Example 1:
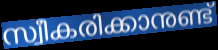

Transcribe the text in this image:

സ്വീകരിക്കാനുണ്ട്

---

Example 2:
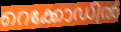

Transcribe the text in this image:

റെക്കോഡിൽ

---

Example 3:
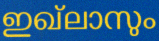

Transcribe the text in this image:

ഇഖ്‌ലാസും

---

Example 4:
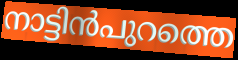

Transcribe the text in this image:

നാട്ടിൻപുറത്തെ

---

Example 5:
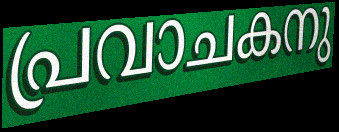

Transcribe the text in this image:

പ്രവാചകനു